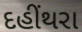
દહીંથરા